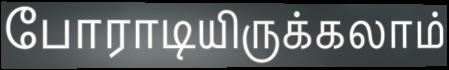
போராடியிருக்கலாம்